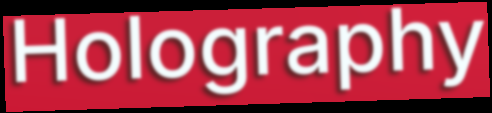
Holography